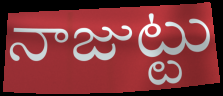
నాజుట్టు